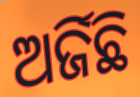
ଅର୍ଜିଛି